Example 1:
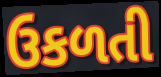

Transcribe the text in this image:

ઉકળતી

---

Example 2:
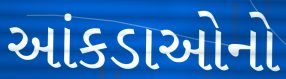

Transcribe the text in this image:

આંકડાઓનો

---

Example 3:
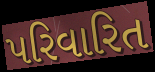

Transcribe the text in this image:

પરિવારિત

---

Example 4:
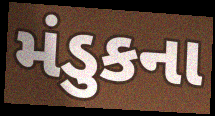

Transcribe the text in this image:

મંડુકના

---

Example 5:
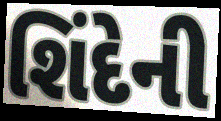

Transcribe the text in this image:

શિંદેની